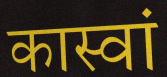
कास्वां